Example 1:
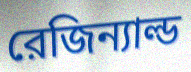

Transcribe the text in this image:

রেজিন্যাল্ড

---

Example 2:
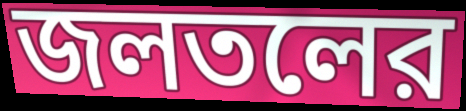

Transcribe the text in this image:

জলতলের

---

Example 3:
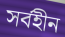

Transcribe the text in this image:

সর্বহীন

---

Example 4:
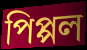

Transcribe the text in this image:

পিপ্পল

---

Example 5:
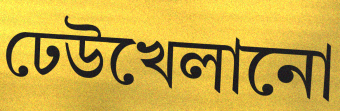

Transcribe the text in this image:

ঢেউখেলানো